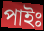
পাইঃ